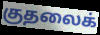
குதலைக்